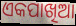
ଏକପାଖିଆ